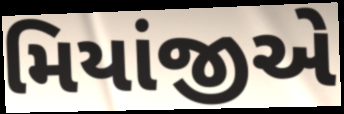
મિયાંજીએ